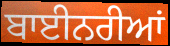
ਬਾਈਨਰੀਆਂ